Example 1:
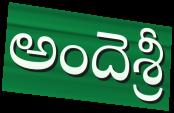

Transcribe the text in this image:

అందెశ్రీ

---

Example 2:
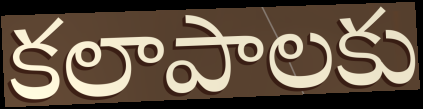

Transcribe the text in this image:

కలాపాలకు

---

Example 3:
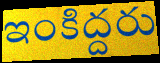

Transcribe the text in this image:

ఇంకిద్దరు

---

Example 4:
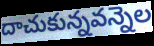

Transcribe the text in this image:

దాచుకున్నవన్నెల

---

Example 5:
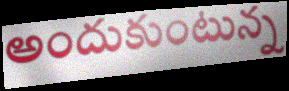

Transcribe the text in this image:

అందుకుంటున్న